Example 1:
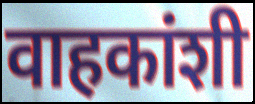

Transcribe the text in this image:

वाहकांशी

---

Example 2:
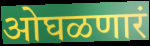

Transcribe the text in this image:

ओघळणारं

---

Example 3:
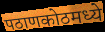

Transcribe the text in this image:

पठाणकोठमध्ये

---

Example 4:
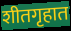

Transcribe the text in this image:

शीतगृहात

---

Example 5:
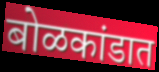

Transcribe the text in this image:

बोळकांडात